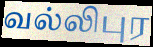
வல்லிபுர